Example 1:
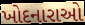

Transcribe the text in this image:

ખોદનારાઓ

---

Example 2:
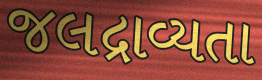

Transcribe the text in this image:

જલદ્રાવ્યતા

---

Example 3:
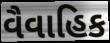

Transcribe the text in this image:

વૈવાહિક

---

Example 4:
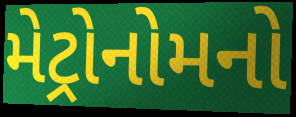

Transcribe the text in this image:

મેટ્રોનોમનો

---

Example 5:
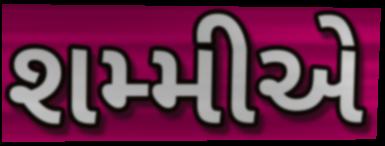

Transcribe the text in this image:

શમ્મીએ